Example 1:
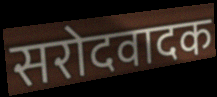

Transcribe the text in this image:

सरोदवादक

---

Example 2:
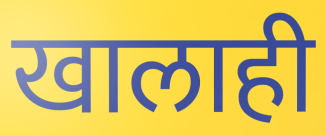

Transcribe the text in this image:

खालाही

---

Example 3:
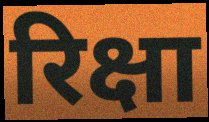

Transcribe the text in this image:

रिक्षा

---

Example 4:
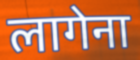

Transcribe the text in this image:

लागेना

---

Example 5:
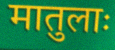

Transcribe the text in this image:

मातुलाः